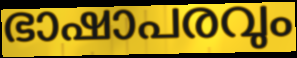
ഭാഷാപരവും